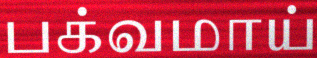
பக்வமாய்